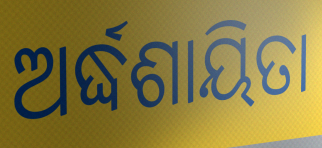
ଅର୍ଦ୍ଧଶାୟିତା